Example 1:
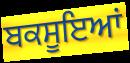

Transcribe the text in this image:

ਬਕਸੂਇਆਂ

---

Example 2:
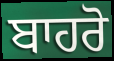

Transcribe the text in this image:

ਬਾਹਰੋ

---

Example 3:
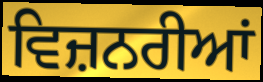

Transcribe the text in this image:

ਵਿਜ਼ਨਰੀਆਂ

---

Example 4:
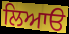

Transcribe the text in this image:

ਲਿਆੳ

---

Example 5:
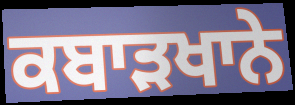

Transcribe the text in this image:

ਕਬਾੜਖਾਨੇ